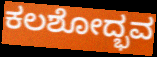
ಕಲಶೋದ್ಭವ